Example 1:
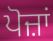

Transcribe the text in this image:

ਪੋਜ਼ਾਂ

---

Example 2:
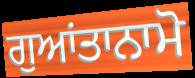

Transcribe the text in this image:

ਗੁਆਂਤਾਨਾਮੋ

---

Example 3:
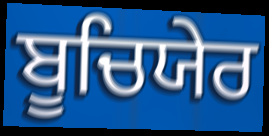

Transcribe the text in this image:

ਬੂਚਿਯੇਰ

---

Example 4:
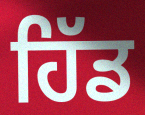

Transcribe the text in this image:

ਹਿੱਡ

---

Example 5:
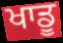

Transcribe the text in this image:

ਖਾਡੂ